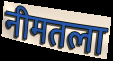
नीमतला